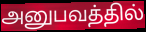
அனுபவத்தில்